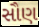
સૌણ